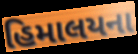
હિમાલયના